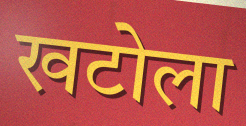
खटोला